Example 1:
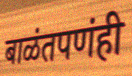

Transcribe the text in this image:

बाळंतपणंही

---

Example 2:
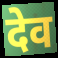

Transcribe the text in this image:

देव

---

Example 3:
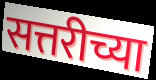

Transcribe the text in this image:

सत्तरीच्या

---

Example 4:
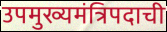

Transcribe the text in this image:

उपमुख्यमंत्रिपदाची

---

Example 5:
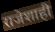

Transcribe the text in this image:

राजेशाही